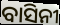
ବାସିନୀ